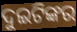
ଦୁଇଟିଙ୍କର